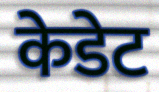
केडेट